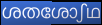
ശതശോഽഥ